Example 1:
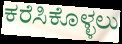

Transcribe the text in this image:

ಕರೆಸಿಕೊಳ್ಳಲು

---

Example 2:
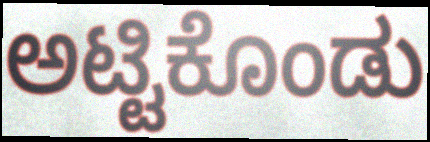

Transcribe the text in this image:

ಅಟ್ಟಿಕೊಂಡು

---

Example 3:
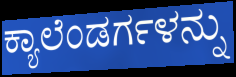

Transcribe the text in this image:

ಕ್ಯಾಲೆಂಡರ್ಗಳನ್ನು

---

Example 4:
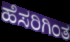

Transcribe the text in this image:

ಹೆಸರಿಗಿಂತ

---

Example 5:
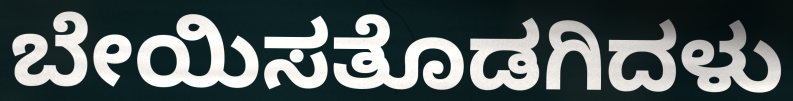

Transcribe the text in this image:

ಬೇಯಿಸತೊಡಗಿದಳು